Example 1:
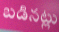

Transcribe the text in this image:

బడినట్లు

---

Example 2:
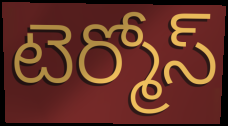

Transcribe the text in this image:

టెర్మోస్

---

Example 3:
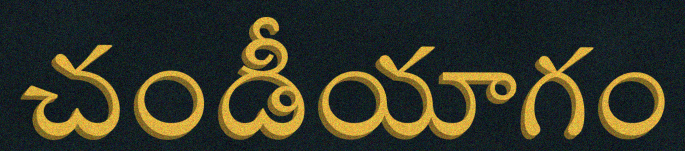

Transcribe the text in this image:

చండీయాగం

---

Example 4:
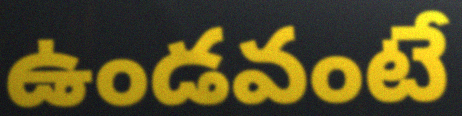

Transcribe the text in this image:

ఉండవంటే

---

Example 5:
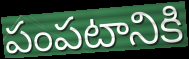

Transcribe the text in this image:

పంపటానికి